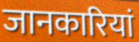
जानकारियां